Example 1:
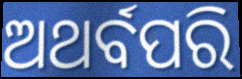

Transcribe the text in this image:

ଅଥର୍ବପରି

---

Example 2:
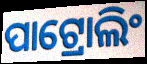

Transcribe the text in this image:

ପାଟ୍ରୋଲିଂ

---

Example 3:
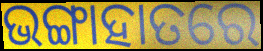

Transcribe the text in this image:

ଭଙ୍ଗାହାତରେ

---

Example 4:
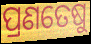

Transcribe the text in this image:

ପ୍ରଣତେଷୁ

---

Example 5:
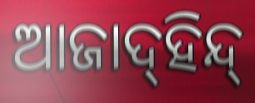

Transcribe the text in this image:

ଆଜାଦ୍‍ହିନ୍ଦ୍